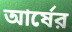
আর্ষের